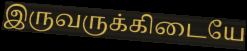
இருவருக்கிடையே